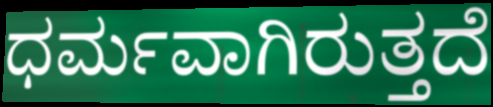
ಧರ್ಮವಾಗಿರುತ್ತದೆ